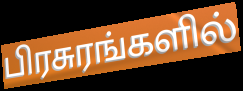
பிரசுரங்களில்